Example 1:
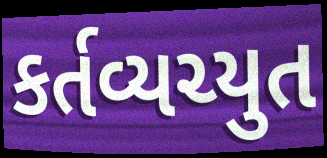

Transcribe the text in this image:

કર્તવ્યચ્યુત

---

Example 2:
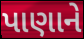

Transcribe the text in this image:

પાણાને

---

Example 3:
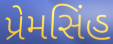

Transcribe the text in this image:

પ્રેમસિંહ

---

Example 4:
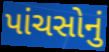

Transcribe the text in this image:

પાંચસોનું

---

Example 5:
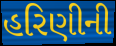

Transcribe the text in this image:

હરિણીની